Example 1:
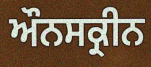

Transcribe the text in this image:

ਔਨਸਕ੍ਰੀਨ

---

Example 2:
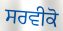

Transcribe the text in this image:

ਸਰਵੀਕੋ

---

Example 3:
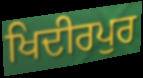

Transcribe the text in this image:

ਖਿਦੀਰਪੁਰ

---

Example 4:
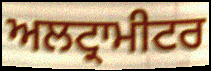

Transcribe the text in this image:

ਅਲਟ੍ਰਾਮੀਟਰ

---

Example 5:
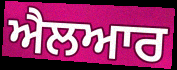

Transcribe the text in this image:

ਐਲਆਰ